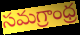
సమగ్రాంధ్ర